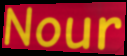
Nour